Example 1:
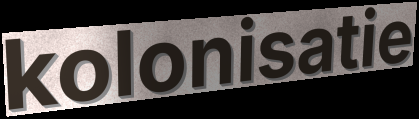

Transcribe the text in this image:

kolonisatie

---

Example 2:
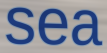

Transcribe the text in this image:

sea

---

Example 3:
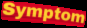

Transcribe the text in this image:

Symptom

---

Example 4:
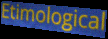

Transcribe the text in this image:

Etimological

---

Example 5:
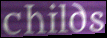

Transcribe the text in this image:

childs